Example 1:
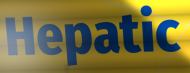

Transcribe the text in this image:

Hepatic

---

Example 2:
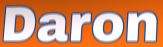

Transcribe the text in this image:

Daron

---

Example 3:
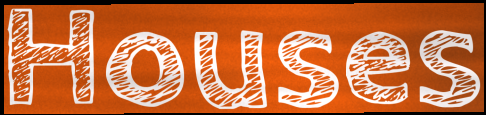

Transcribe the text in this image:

Houses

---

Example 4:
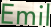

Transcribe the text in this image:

Emil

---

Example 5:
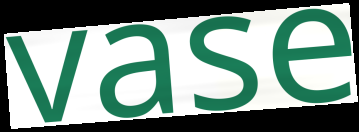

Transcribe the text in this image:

vase